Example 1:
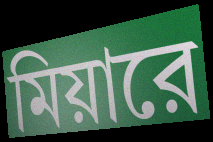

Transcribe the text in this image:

মিয়ারে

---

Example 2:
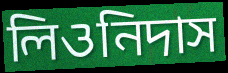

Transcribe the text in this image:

লিওনিদাস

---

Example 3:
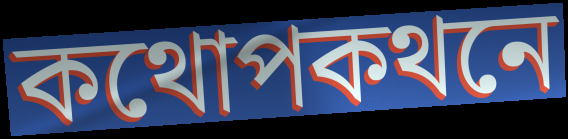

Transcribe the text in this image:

কথোপকথনে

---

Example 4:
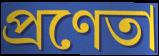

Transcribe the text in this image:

প্রণেতা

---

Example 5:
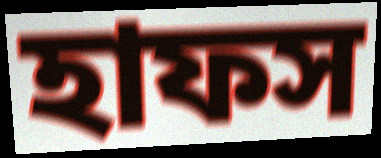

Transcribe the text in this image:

হাফস